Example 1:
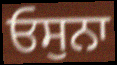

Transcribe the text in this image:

ਓਸੁਨਾ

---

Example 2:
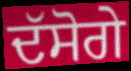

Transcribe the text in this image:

ਦੱਸੋਗੇ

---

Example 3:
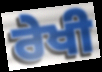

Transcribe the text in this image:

ਰੇਖੀ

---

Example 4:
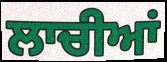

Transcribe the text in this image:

ਲਾਚੀਆਂ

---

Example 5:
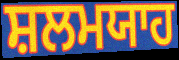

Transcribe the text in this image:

ਸ਼ਲਮਯਾਹ